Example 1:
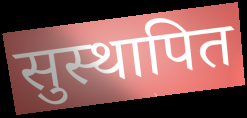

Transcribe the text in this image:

सुस्थापित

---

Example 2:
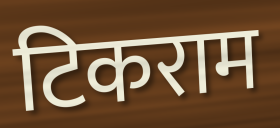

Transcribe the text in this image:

टिकराम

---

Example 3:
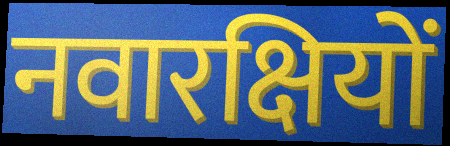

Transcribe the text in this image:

नवारक्षियों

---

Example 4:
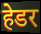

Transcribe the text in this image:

हेडर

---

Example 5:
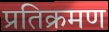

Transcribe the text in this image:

प्रतिक्रमण